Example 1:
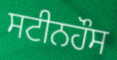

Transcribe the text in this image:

ਸਟੀਨਹੌਸ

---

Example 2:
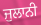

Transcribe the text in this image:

ਜੁਲਾਨੀ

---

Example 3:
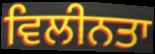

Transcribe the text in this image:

ਵਿਲੀਨਤਾ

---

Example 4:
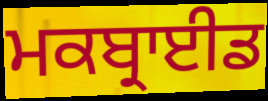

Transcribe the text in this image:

ਮਕਬ੍ਰਾਈਡ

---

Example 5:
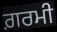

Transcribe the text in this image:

ਗ਼ਰਮੀ